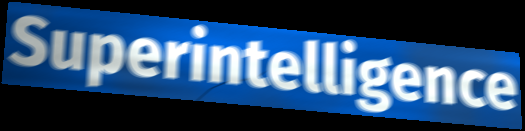
Superintelligence